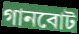
গানবোট